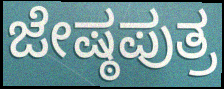
ಜೇಷ್ಠಪುತ್ರ